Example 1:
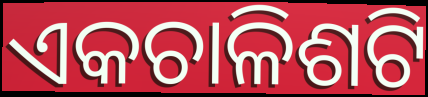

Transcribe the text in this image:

ଏକଚାଳିଶଟି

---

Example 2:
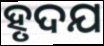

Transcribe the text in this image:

ହୃଦଯ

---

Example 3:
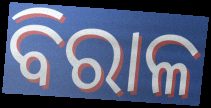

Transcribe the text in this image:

ବିରାଳ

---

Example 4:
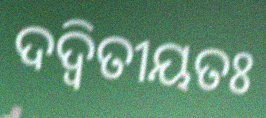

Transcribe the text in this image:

ଦଦ୍ୱିତୀୟତଃ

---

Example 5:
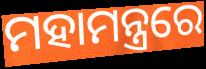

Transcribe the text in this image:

ମହାମନ୍ତ୍ରରେ